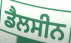
ਡੈਲਸੀਨ